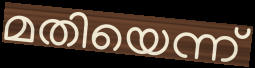
മതിയെന്ന്